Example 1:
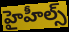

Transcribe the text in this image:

హైహీల్స్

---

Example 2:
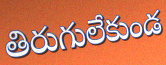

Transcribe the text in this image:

తిరుగులేకుండ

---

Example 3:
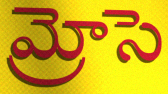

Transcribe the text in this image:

మ్రోసె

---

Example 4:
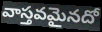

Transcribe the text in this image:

వాస్తవమైనదో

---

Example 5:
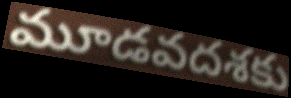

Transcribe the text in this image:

మూడవదశకు